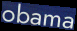
obama